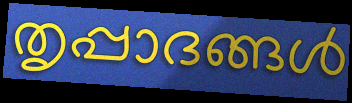
തൃപ്പാദങ്ങൾ